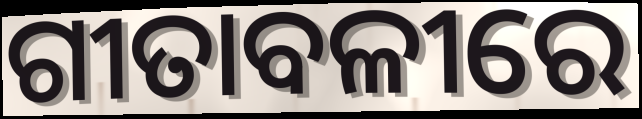
ଗୀତାବଳୀରେ